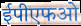
ईपीएफओ